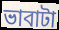
ভাবাটা